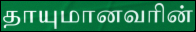
தாயுமானவரின்